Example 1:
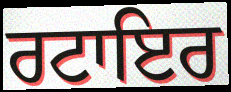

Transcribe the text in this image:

ਰਟਾਇਰ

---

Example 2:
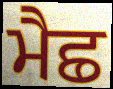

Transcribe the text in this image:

ਮੈਛ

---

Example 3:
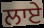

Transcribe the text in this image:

ਲਾਏ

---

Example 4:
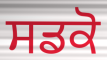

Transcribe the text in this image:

ਸਡਕੋ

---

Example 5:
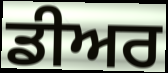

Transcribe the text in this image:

ਡੀਅਰ